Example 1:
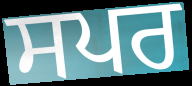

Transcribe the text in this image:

ਸਪਰ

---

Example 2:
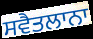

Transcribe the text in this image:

ਸਵੈਤਲਾਨਾ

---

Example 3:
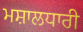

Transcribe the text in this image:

ਮਸ਼ਾਲਧਾਰੀ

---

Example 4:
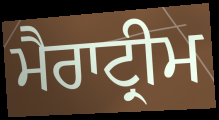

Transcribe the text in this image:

ਮੈਰਾਟ੍ਰੀਮ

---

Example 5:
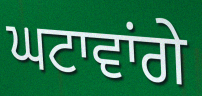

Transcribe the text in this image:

ਘਟਾਵਾਂਗੇ